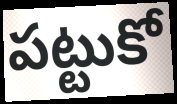
పట్టుకో